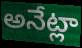
అనేట్లా